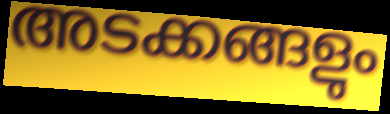
അടക്കങ്ങളും